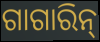
ଗାଗାରିନ୍